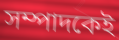
সম্পাদকেই